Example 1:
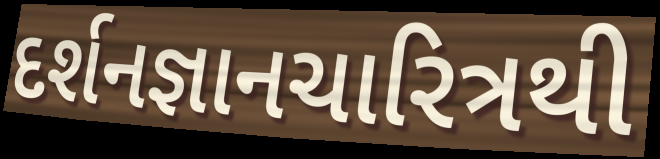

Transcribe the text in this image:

દર્શનજ્ઞાનચારિત્રથી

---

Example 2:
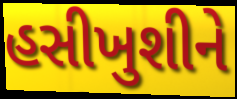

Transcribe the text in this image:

હસીખુશીને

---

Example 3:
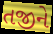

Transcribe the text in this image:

તજીને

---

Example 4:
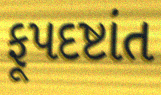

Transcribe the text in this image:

ફૂપદષ્ટાંત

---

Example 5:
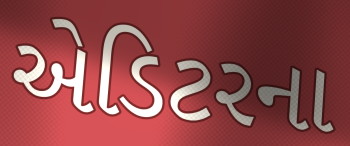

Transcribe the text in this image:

એડિટરના